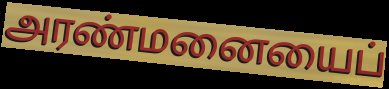
அரண்மனையைப்